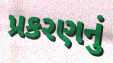
પ્રકરણનું